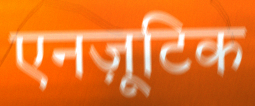
एनज़ूटिक